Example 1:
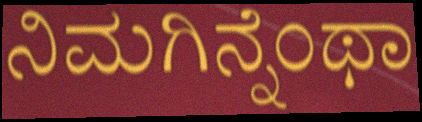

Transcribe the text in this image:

ನಿಮಗಿನ್ನೆಂಥಾ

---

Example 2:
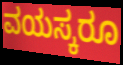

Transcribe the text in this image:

ವಯಸ್ಕರೂ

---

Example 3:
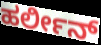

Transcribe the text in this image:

ಹರ್ಲೀನ್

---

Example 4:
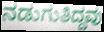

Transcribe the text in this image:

ನಡುಗುತಿದ್ದವು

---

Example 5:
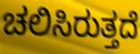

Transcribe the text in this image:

ಚಲಿಸಿರುತ್ತದೆ